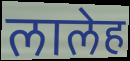
लालेह